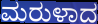
ಮರುಳಾದ